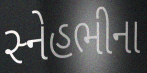
સ્નેહભીના